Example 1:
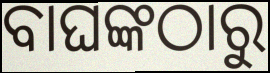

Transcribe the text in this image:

ବାଘଙ୍କଠାରୁ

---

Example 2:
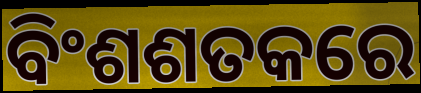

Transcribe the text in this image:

ବିଂଶଶତକରେ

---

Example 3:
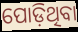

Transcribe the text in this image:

ପୋଡ଼ିଥିବା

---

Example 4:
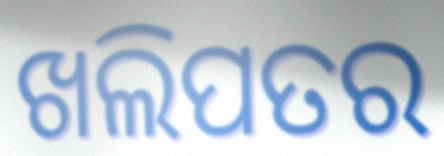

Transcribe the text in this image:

ଖଲିପତର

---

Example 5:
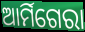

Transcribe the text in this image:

ଆର୍ମିଗେରା